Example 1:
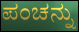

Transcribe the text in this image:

ಪಂಚನ್ನು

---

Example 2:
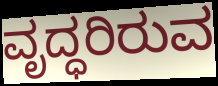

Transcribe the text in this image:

ವೃದ್ಧರಿರುವ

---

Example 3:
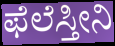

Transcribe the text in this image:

ಫೆಲೆಸ್ತೀನಿ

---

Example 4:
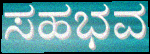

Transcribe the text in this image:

ಸಹಭವ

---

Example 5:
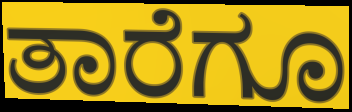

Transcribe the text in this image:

ತಾರೆಗೂ